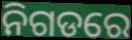
ନିଗଡରେ